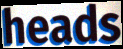
heads